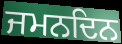
ਜਮਨਦਿਨ